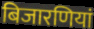
बिजारणियां